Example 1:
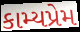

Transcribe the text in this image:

કામ્યપ્રેમ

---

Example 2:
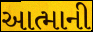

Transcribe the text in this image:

આત્માની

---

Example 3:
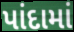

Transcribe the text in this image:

પાંદામાં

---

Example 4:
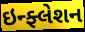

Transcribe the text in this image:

ઇન્ફ્લેશન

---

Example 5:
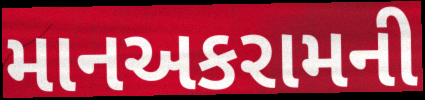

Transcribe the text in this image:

માનઅકરામની